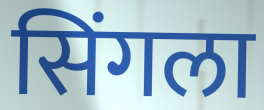
सिंगला